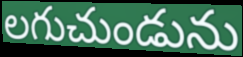
లగుచుండును